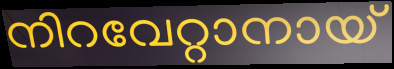
നിറവേറ്റാനായ്